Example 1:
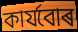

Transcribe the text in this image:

কাৰ্যবোৰ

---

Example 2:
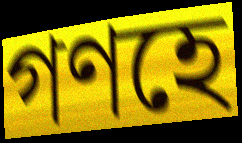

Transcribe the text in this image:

গণহে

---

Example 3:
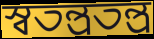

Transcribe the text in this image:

স্বতন্ত্ৰতন্ত্ৰ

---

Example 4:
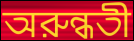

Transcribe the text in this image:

অৰুন্ধতী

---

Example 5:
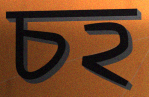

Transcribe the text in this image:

চহ